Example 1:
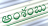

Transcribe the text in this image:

అంశంబు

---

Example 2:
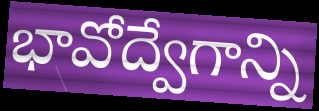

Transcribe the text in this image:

భావోద్వేగాన్ని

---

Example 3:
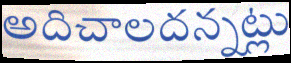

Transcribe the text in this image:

అదిచాలదన్నట్లు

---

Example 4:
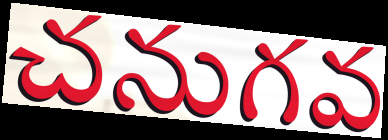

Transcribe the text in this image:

చనుగవ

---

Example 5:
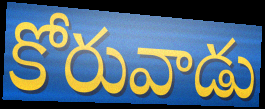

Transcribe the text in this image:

కోరువాడు